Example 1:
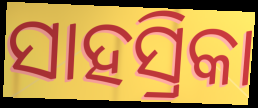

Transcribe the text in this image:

ସାହସ୍ରିକା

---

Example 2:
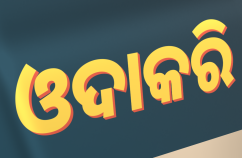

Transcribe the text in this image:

ଓଦାକରି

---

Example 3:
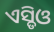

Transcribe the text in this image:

ଏସ୍ଡିଓ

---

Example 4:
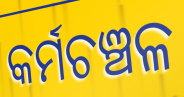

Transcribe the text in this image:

କର୍ମଚଞ୍ଚଳ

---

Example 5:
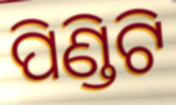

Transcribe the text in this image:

ପିଣ୍ଡିଟି